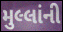
મુલ્લાંની